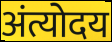
अंत्योदय